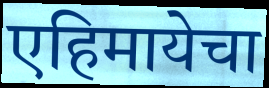
एहिमायेचा